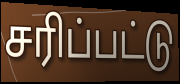
சரிப்பட்டு